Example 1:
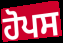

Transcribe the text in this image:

ਹੋਪਸ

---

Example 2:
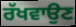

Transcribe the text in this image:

ਰੱਖਵਾਉਣ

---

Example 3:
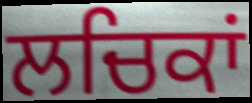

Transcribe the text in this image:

ਲਚਿਕਾਂ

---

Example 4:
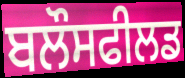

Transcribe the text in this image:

ਬਲੌਸਫੀਲਡ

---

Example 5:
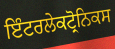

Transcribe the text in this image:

ਇੰਟਰਲੇਕਟ੍ਰੋਨਿਕਸ